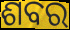
ଶବର